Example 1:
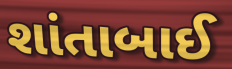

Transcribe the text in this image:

શાંતાબાઈ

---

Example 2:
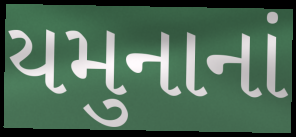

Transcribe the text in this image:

યમુનાનાં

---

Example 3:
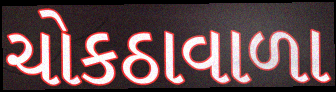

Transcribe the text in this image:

ચોકઠાવાળા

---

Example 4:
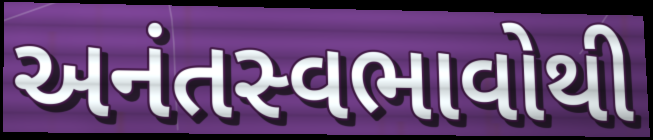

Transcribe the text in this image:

અનંતસ્વભાવોથી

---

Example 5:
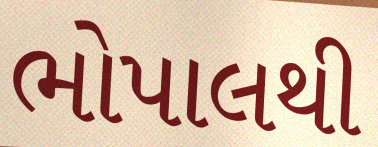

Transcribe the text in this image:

ભોપાલથી